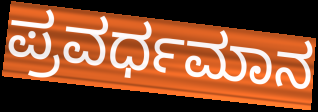
ಪ್ರವರ್ಧಮಾನ